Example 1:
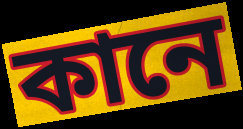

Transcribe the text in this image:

কানে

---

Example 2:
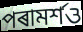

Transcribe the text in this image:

পৰামৰ্শও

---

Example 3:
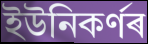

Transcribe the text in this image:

ইউনিকৰ্ণৰ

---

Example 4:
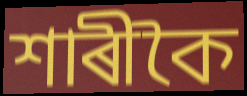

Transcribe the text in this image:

শাৰীকৈ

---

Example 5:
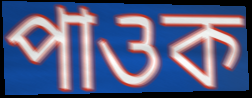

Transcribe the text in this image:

পাওক